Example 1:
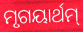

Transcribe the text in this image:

ମୃଗୟାର୍ଥମ୍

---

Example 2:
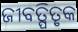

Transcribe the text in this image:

ଜୀବତ୍ପିତୃକ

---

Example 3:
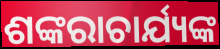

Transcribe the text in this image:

ଶଙ୍କରାଚାର୍ଯ୍ୟଙ୍କ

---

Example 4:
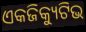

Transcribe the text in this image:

ଏକଜିକ୍ୟୁଟିଭ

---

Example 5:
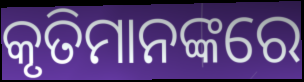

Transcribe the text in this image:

କୃତିମାନଙ୍କରେ